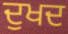
ਦੁਖਦ